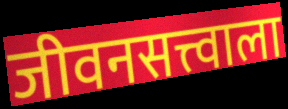
जीवनसत्त्वाला